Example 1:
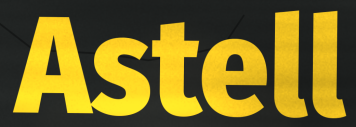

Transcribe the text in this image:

Astell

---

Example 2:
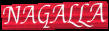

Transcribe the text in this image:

NAGALLA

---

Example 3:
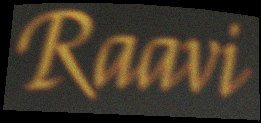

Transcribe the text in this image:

Raavi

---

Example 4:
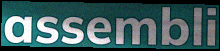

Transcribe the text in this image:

assembli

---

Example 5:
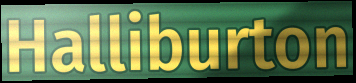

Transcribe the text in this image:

Halliburton